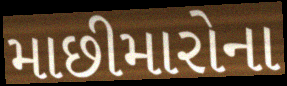
માછીમારોના